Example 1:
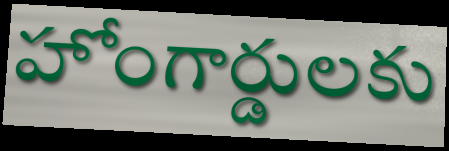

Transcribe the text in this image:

హోంగార్డులకు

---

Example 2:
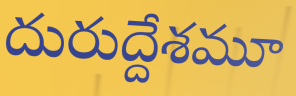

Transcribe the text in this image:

దురుద్దేశమూ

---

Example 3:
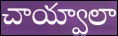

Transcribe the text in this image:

చాయ్వాలా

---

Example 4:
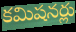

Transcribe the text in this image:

కమిషనర్లు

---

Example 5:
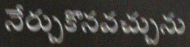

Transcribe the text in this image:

నేర్చుకొనవచ్చును